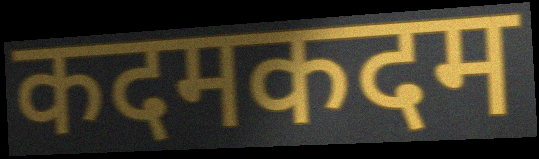
कदमकदम